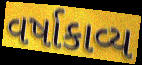
વર્ષાકાવ્ય